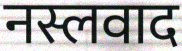
नस्लवाद